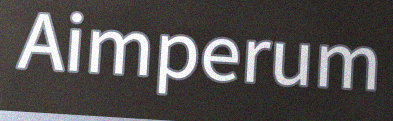
Aimperum